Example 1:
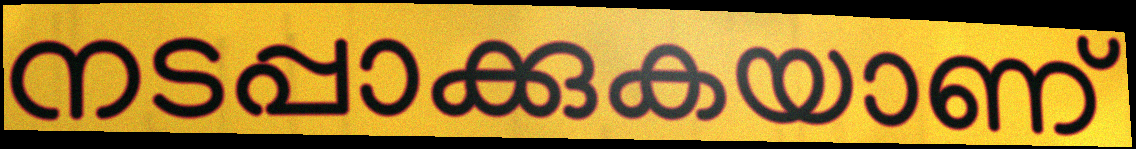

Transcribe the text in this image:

നടപ്പാക്കുകയാണ്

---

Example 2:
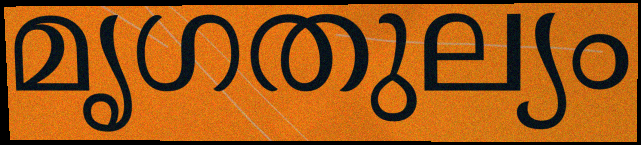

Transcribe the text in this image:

മൃഗതുല്യം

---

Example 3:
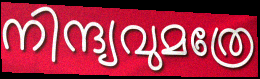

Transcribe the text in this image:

നിന്ദ്യവുമത്രേ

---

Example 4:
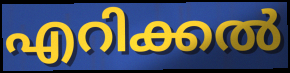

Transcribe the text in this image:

എറിക്കൽ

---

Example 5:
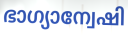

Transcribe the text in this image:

ഭാഗ്യാന്വേഷി